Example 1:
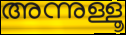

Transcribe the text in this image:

അന്നുള്ളൂ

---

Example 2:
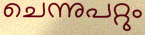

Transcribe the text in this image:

ചെന്നുപറ്റും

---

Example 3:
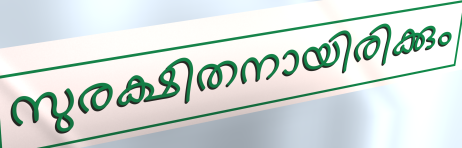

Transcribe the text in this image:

സുരക്ഷിതനായിരിക്കും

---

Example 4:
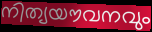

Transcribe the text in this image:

നിത്യയൗവനവും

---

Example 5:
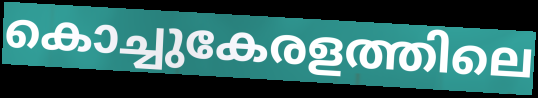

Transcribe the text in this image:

കൊച്ചുകേരളത്തിലെ